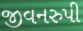
જીવનરુપી